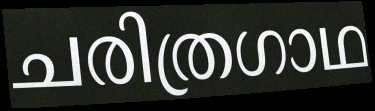
ചരിത്രഗാഥ